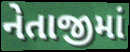
નેતાજીમાં